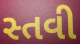
સ્તવી